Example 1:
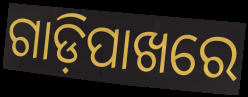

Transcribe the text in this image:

ଗାଡ଼ିପାଖରେ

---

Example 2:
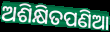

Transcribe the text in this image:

ଅଶିକ୍ଷିତପଣିଆ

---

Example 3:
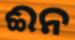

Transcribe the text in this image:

ଈନ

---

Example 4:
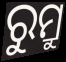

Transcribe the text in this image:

ରୁମ୍ରୁ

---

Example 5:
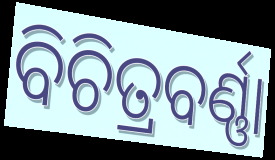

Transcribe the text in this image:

ବିଚିତ୍ରବର୍ଣ୍ଣା